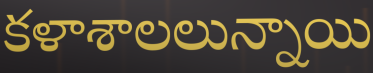
కళాశాలలున్నాయి